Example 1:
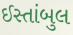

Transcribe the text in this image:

ઈસ્તાંબુલ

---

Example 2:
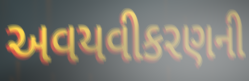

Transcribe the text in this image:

અવયવીકરણની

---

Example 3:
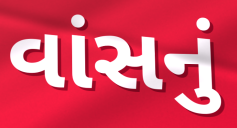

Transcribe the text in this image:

વાંસનું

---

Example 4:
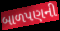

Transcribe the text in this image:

બાળપણની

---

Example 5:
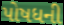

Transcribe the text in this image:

પોષધની